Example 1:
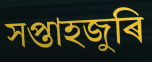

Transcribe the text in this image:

সপ্তাহজুৰি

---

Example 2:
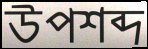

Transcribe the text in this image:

উপশব্দ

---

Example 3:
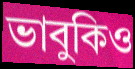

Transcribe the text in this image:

ভাবুকিও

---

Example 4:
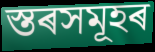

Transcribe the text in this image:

স্তৰসমূহৰ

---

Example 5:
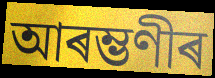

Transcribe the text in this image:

আৰম্ভণীৰ